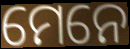
ମେନେ